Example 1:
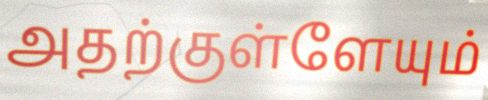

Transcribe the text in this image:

அதற்குள்ளேயும்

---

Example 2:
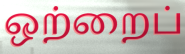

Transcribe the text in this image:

ஒற்றைப்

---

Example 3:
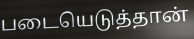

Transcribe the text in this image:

படையெடுத்தான்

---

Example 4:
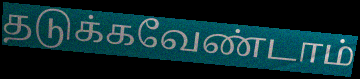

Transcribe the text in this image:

தடுக்கவேண்டாம்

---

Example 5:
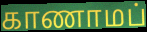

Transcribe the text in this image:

காணாமப்